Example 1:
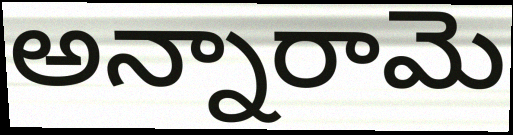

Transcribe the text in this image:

అన్నారామె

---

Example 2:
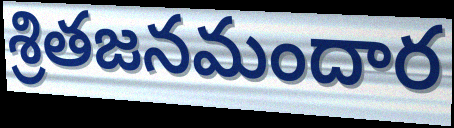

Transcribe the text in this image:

శ్రితజనమందార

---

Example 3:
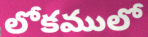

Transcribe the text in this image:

లోకములో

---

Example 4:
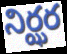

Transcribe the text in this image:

నిర్ఝర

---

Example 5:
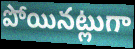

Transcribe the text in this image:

పోయినట్లుగా